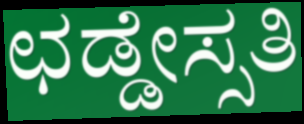
ಛಡ್ಡೇಸ್ಸತಿ